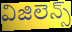
విజిలెన్స్